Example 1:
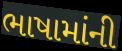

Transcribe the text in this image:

ભાષામાંની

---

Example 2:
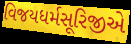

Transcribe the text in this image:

વિજયધર્મસૂરિજીએ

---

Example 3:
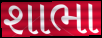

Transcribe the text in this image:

શાભા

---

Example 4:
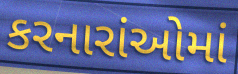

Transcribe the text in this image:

કરનારાંઓમાં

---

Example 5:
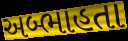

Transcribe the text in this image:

અબ્ભાહતા